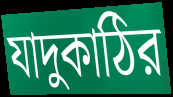
যাদুকাঠির